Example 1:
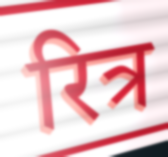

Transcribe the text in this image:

रित्र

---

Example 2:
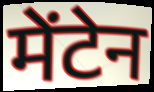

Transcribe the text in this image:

मेंटेन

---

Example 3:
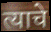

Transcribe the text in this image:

त्याचे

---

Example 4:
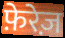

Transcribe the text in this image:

फ़ेरेज़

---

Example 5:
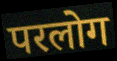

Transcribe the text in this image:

परलोग